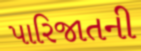
પારિજાતની